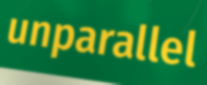
unparallel